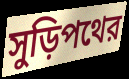
সুড়িপথের